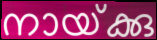
നായ്‌ക്കു